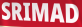
SRIMAD